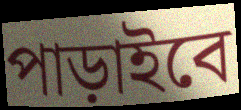
পাড়াইবে